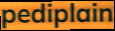
pediplain